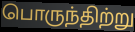
பொருந்திற்று